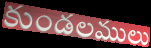
కుండలములు